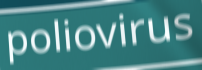
poliovirus